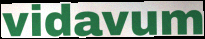
vidavum